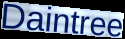
Daintree